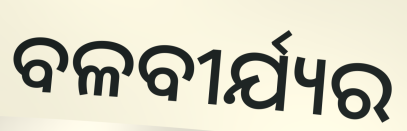
ବଳବୀର୍ଯ୍ୟର